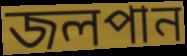
জলপান